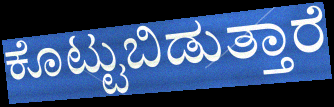
ಕೊಟ್ಟುಬಿಡುತ್ತಾರೆ